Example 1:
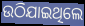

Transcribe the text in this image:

ଉଠିଯାଇଥିଲେ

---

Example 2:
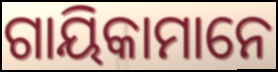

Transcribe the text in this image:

ଗାୟିକାମାନେ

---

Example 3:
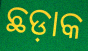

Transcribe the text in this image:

ଛଡ଼ାକ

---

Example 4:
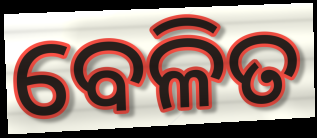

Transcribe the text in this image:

ବେଳିତ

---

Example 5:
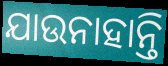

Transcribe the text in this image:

ଯାଉନାହାନ୍ତି